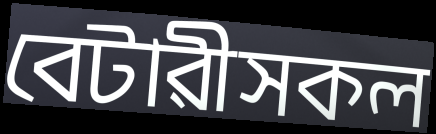
বেটাৱীসকল